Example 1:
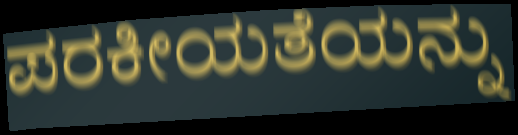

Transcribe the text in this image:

ಪರಕೀಯತೆಯನ್ನು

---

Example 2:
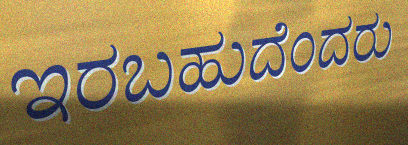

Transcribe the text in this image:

ಇರಬಹುದೆಂದರು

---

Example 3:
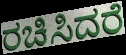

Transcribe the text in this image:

ರಚಿಸಿದರೆ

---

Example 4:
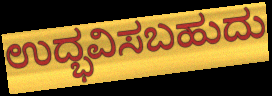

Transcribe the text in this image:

ಉದ್ಭವಿಸಬಹುದು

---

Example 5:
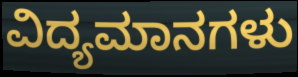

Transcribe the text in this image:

ವಿದ್ಯಮಾನಗಳು